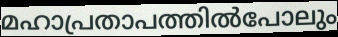
മഹാപ്രതാപത്തിൽപോലും